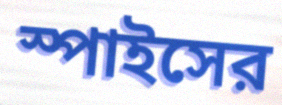
স্পাইসের